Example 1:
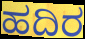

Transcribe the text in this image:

ಹದಿರ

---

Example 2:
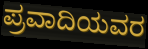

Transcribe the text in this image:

ಪ್ರವಾದಿಯವರ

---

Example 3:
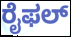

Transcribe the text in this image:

ರೈಫಲ್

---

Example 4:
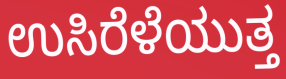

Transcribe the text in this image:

ಉಸಿರೆಳೆಯುತ್ತ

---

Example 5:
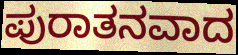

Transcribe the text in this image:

ಪುರಾತನವಾದ